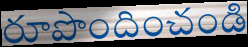
రూపొందించండి